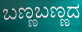
ಬಣ್ಣಬಣ್ಣದ